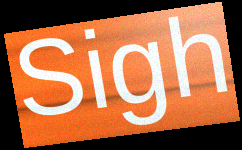
Sigh